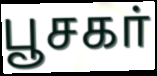
பூசகர்